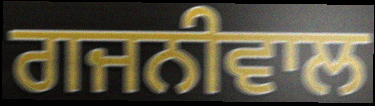
ਗਜਨੀਵਾਲ